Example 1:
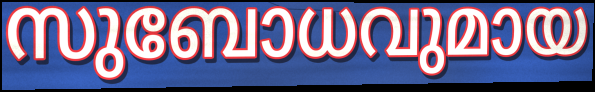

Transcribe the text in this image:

സുബോധവുമായ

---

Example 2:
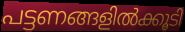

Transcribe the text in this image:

പട്ടണങ്ങളിൽക്കൂടി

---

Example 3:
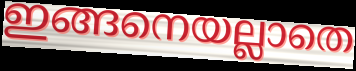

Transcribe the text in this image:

ഇങ്ങനെയല്ലാതെ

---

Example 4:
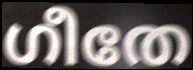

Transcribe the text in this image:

ഗീതേ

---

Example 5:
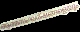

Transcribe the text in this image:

ആത്മസംഘര്ഷങ്ങളെയും